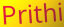
Prithi